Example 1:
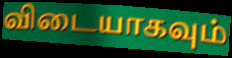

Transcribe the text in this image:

விடையாகவும்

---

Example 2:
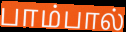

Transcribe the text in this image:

பாம்பால்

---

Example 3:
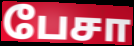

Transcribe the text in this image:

பேசா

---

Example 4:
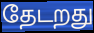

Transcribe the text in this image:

தேடறது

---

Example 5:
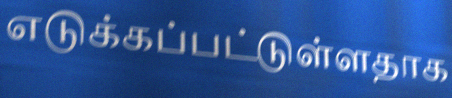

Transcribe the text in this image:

எடுக்கப்பட்டுள்ளதாக